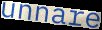
unnare